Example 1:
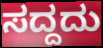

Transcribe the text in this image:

ಸದ್ದದು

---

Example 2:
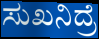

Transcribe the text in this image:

ಸುಖನಿದ್ರೆ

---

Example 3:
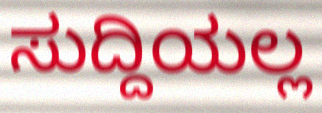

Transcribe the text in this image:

ಸುದ್ದಿಯಲ್ಲ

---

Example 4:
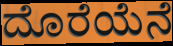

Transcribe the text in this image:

ದೊರೆಯೆನೆ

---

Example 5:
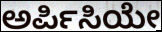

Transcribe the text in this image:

ಅರ್ಪಿಸಿಯೇ